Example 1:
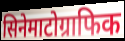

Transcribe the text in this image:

सिनेमाटोग्राफिक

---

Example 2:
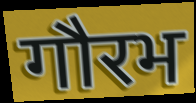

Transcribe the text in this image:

गौरभ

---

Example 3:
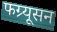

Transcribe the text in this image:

फग्र्यूसन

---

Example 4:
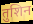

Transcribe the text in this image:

तुशिन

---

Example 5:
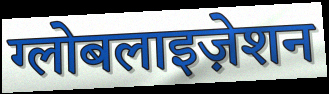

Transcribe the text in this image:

ग्लोबलाइज़ेशन